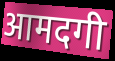
आमदगी